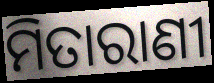
ମିତାରାଣୀ